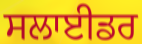
ਸਲਾਈਡਰ